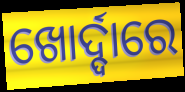
ଖୋର୍ଦ୍ଦାରେ